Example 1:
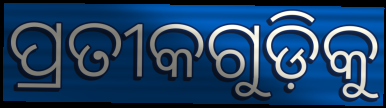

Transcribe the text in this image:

ପ୍ରତୀକଗୁଡ଼ିକୁ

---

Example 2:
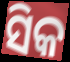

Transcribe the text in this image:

ସିକ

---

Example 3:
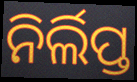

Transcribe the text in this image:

ନିର୍ଲିପ୍ତ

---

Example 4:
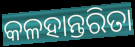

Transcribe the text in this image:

କଳହାନ୍ତରିତା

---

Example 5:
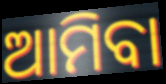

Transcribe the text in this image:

ଆମିବା